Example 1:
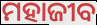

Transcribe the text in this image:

ମହାଜୀବ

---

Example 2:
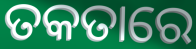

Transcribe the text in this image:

ତକତାରେ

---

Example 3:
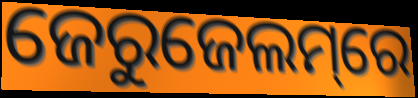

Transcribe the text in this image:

ଜେରୁଜେଲମ୍‌ରେ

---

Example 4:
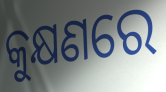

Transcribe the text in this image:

କୁକ୍ଷଣରେ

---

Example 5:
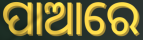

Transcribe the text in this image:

ପାଆରେ